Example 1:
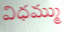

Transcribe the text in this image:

విధమ్ము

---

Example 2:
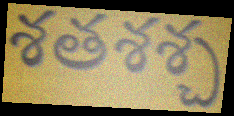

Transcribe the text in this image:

శతశశ్చ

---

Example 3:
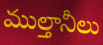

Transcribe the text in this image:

ముల్తానీలు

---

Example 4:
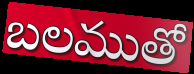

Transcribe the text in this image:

బలముతో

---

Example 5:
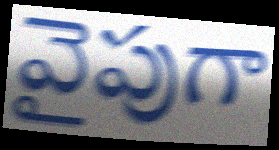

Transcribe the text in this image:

వైపుగా